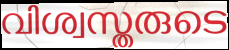
വിശ്വസ്തരുടെ